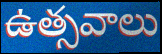
ఉత్సవాలు